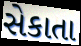
સેકાતા